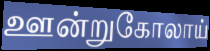
ஊன்றுகோலாய்